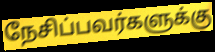
நேசிப்பவர்களுக்கு